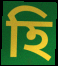
হি